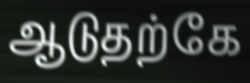
ஆடுதற்கே